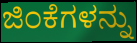
ಜಿಂಕೆಗಳನ್ನು